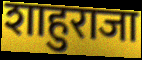
शाहुराजा